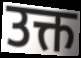
उक्त